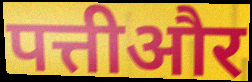
पत्तीऔर